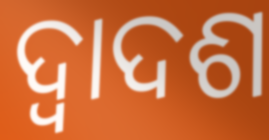
ଦ୍ୱାଦଶ